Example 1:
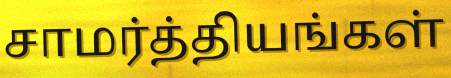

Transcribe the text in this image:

சாமர்த்தியங்கள்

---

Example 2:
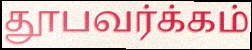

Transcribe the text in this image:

தூபவர்க்கம்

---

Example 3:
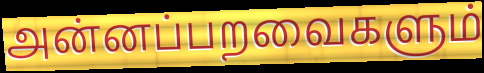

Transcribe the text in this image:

அன்னப்பறவைகளும்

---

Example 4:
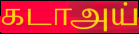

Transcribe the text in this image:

கடாஅய்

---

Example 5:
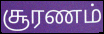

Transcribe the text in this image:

சூரணம்